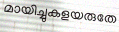
മായിച്ചുകളയരുതേ